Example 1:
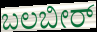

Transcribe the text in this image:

ಬಲಬೀರ್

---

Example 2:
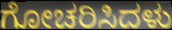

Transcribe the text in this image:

ಗೋಚರಿಸಿದಳು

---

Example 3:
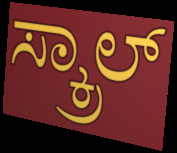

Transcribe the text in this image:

ಸ್ಕ್ರಾಲ್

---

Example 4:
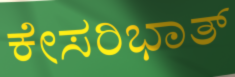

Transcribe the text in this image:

ಕೇಸರಿಭಾತ್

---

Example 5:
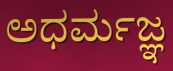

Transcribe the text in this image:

ಅಧರ್ಮಜ್ಞ